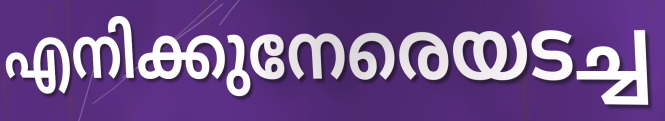
എനിക്കുനേരെയടച്ച